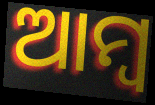
ଆମ୍ୱ